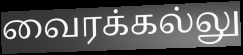
வைரக்கல்லு